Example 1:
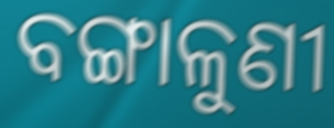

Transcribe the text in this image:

ବଙ୍ଗାଳୁଣୀ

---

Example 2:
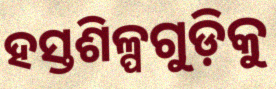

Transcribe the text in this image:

ହସ୍ତଶିଳ୍ପଗୁଡ଼ିକୁ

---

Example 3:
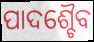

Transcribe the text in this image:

ପାଦଶ୍ଚୈବ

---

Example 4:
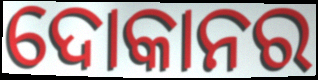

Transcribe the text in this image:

ଦୋକାନର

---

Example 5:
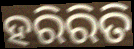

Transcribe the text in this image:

ହରିରିତି